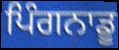
ਪਿੰਗਨਾਡੂ